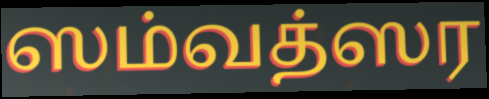
ஸம்வத்ஸர